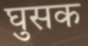
घुसक